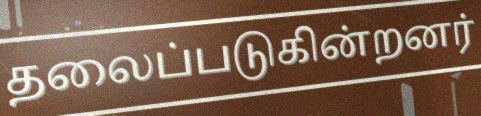
தலைப்படுகின்றனர்